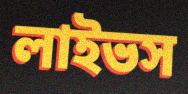
লাইভস